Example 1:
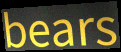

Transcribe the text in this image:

bears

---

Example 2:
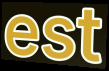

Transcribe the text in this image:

est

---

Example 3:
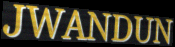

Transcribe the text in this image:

JWANDUN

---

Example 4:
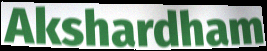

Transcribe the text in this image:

Akshardham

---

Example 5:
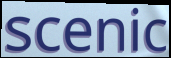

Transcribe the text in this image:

scenic